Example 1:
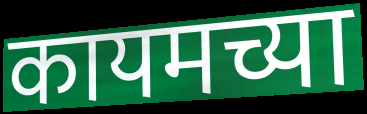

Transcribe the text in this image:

कायमच्या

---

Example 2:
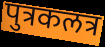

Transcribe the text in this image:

पुत्रकलत्र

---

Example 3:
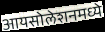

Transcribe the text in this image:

आयसोलेशनमध्ये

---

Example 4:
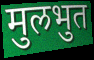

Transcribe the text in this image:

मुलभुत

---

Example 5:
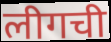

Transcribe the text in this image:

लीगची